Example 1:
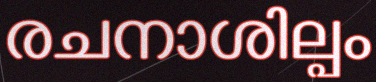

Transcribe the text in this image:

രചനാശില്പം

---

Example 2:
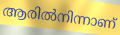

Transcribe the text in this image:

ആരിൽനിന്നാണ്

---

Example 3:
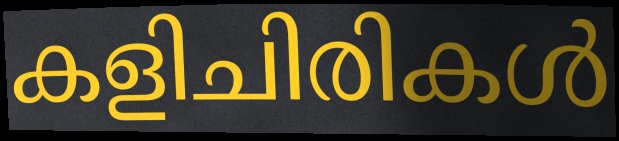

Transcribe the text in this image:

കളിചിരികൾ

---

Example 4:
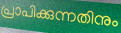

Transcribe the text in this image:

പ്രാപിക്കുന്നതിനും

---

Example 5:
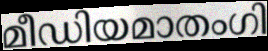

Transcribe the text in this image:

മീഡിയമാതംഗി